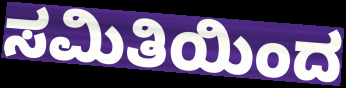
ಸಮಿತಿಯಿಂದ